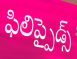
ఫిలిప్పైడ్స్